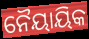
ନୈୟାୟିକ